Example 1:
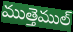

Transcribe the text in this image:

ముత్తెముల్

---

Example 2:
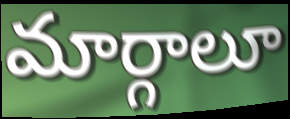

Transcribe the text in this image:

మార్గాలూ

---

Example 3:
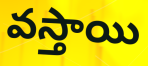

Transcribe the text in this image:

వస్తాయి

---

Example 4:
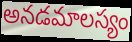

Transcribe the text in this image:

అనడమాలస్యం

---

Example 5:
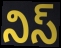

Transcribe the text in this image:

నిస్